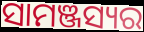
ସାମଞ୍ଜସ୍ୟର